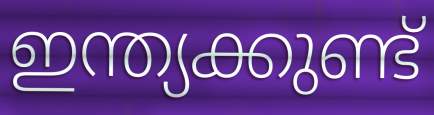
ഇന്ത്യക്കുണ്ട്